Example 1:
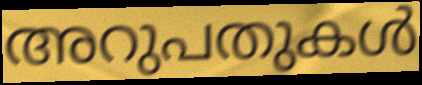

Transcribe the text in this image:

അറുപതുകൾ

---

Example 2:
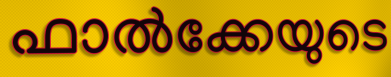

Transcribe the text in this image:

ഫാൽക്കേയുടെ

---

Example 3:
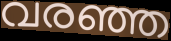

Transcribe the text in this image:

വരഞ്ഞ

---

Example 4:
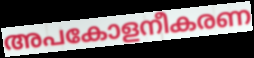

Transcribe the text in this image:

അപകോളനീകരണ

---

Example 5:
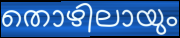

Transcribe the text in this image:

തൊഴിലായും